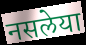
नसलेया